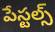
పేస్టల్స్